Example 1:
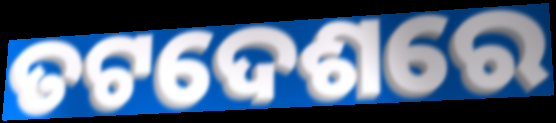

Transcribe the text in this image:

ତଟଦେଶରେ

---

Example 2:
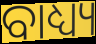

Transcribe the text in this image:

ବାଧ୍ୟ୍ୟ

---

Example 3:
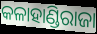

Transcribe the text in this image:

କଳାହାଣ୍ଡିରାଜା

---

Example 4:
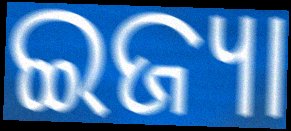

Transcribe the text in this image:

ଇଜ୍ୟା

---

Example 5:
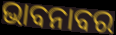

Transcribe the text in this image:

ଭାବନାବର